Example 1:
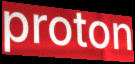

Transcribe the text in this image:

proton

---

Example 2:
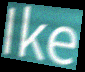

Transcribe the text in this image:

Ike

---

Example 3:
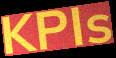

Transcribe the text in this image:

KPIs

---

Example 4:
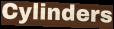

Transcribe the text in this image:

Cylinders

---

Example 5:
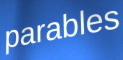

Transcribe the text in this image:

parables